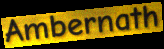
Ambernath